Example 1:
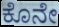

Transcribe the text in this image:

ಕೊನೇ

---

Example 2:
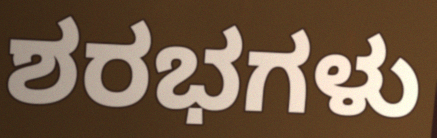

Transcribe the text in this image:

ಶರಭಗಳು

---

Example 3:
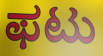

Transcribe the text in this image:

ಫಟು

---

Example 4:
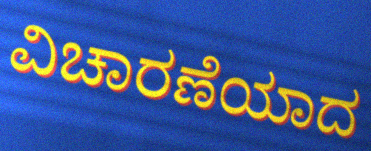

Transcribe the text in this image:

ವಿಚಾರಣೆಯಾದ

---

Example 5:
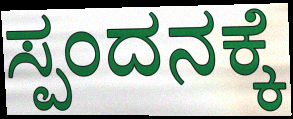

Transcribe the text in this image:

ಸ್ಪಂದನಕ್ಕೆ